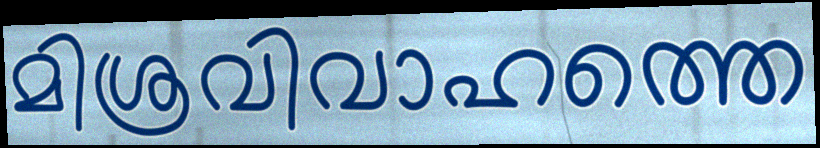
മിശ്രവിവാഹത്തെ